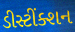
ડીસ્ટીંક્શન